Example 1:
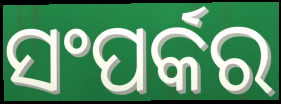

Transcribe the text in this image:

ସଂପର୍କର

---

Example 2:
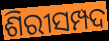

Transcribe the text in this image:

ଶିରୀସମ୍ପଦ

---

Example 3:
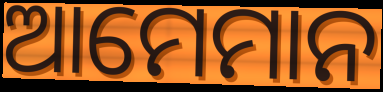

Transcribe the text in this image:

ଆମେମାନ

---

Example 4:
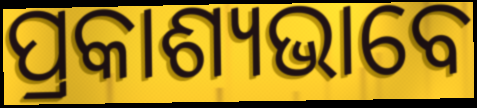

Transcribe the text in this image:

ପ୍ରକାଶ୍ୟଭାବେ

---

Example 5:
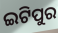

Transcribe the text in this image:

ଇଟିପୁର